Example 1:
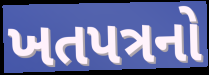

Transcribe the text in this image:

ખતપત્રનો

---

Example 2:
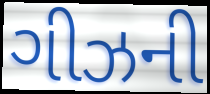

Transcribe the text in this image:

ગીઝની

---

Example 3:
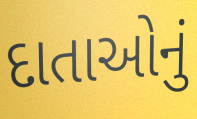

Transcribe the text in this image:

દાતાઓનું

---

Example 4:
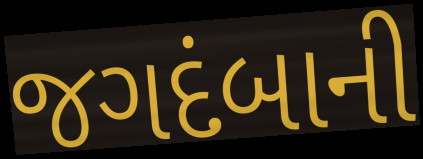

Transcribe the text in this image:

જગદંબાની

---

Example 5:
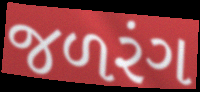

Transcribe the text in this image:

જળરંગ